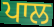
ਪਾਲ